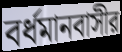
বর্ধমানবাসীর